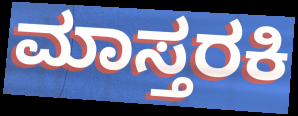
ಮಾಸ್ತರಕಿ